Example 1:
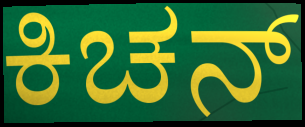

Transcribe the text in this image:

ಕಿಚನ್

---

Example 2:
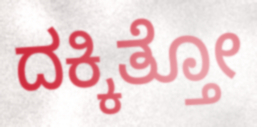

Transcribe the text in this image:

ದಕ್ಕಿತ್ತೋ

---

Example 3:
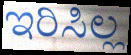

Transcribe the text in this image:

ಇರಿಸಿಲ್ಲ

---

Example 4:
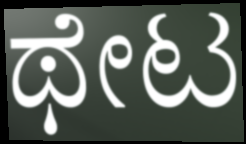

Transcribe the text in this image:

ಥೇಟ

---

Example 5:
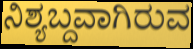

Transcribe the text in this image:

ನಿಶ್ಯಬ್ದವಾಗಿರುವ